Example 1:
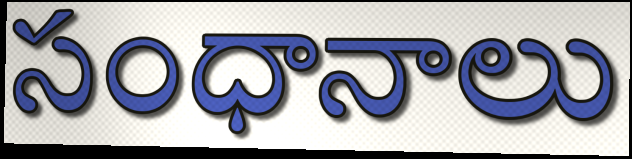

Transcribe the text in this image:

సంధానాలు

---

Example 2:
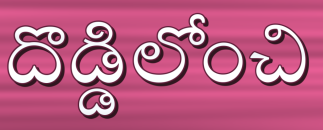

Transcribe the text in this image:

దొడ్డిలోంచి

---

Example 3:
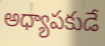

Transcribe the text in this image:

అధ్యాపకుడే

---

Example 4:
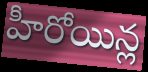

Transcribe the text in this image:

హీరోయిన్ల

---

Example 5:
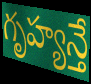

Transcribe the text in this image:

గృహ్యన్తే